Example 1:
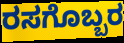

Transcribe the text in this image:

ರಸಗೊಬ್ಬರ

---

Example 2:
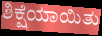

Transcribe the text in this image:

ಶಿಕ್ಷೆಯಾಯಿತು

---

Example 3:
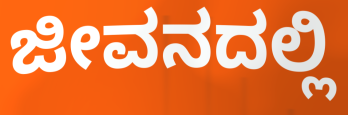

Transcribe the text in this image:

ಜೀವನದಲ್ಲಿ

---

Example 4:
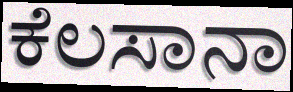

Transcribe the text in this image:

ಕೆಲಸಾನಾ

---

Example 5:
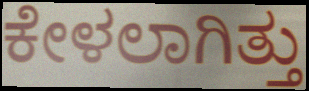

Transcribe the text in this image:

ಕೇಳಲಾಗಿತ್ತು